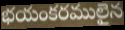
భయంకరములైన